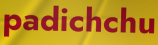
padichchu